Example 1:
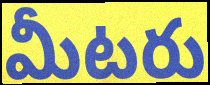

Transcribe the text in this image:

మీటరు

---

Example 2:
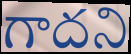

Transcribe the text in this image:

గాదని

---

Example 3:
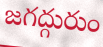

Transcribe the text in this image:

జగద్గురుం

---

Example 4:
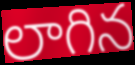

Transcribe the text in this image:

లాగిన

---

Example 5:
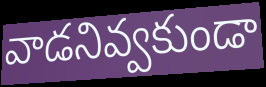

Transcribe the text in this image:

వాడనివ్వకుండా